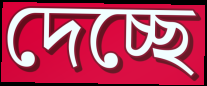
দেচ্ছে